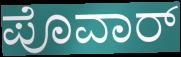
ಪೊವಾರ್